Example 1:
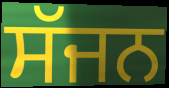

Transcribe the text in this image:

ਸੱਜਨ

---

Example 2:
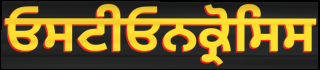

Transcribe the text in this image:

ਓਸਟੀਓਨਕ੍ਰੋਸਿਸ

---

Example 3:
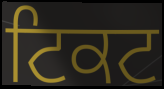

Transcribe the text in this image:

ਟਿਕਟ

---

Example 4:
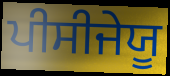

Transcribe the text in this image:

ਪੀਸੀਜੇਯੂ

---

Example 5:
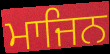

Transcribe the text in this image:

ਮਾਜਿਨ